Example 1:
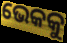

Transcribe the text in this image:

ଭେକକୁ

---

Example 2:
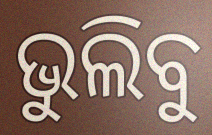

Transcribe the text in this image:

ଭୁଲିବୁ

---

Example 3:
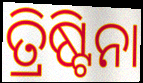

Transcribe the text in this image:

ତ୍ରିଷ୍ଟିନା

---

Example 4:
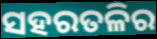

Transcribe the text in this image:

ସହରତଳିର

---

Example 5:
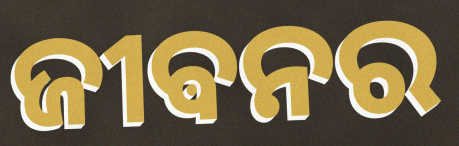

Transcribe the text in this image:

ଜୀଵନର